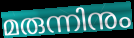
മരുന്നിനും